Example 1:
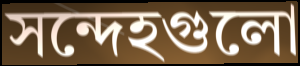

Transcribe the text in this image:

সন্দেহগুলো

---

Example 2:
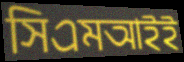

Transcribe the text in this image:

সিএমআইই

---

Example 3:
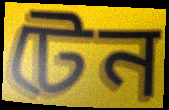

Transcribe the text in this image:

টেন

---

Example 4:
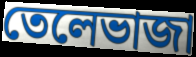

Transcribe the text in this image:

তেলেভাজা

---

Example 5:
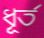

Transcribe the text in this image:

ধূর্ত